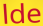
lde